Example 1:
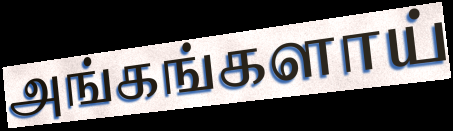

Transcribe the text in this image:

அங்கங்களாய்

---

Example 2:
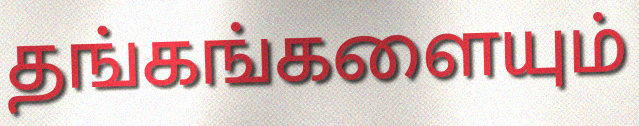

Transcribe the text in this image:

தங்கங்களையும்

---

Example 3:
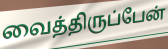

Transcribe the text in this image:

வைத்திருப்பேன்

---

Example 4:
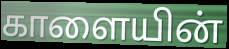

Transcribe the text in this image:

காளையின்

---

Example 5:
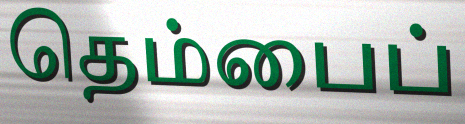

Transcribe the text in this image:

தெம்பைப்